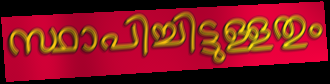
സ്ഥാപിച്ചിട്ടുള്ളതും